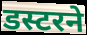
डस्टरने